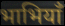
भाभियाँ